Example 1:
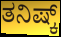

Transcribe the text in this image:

ತನಿಷ್ಕ್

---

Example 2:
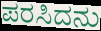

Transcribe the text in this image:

ಪರಸಿದನು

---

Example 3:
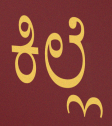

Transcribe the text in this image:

ಕಿಲ್ಲೆ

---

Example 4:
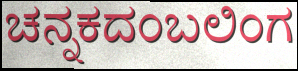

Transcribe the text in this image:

ಚನ್ನಕದಂಬಲಿಂಗ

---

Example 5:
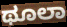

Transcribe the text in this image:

ಥೂಲಾ